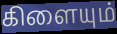
கிளையும்